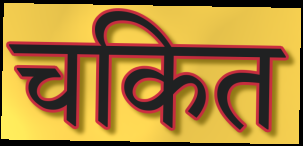
चकित